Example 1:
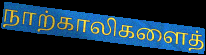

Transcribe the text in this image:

நாற்காலிகளைத்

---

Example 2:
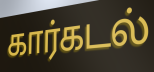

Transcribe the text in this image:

கார்கடல்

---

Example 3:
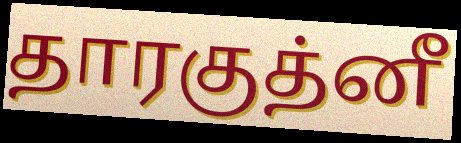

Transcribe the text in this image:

தாரகுத்னீ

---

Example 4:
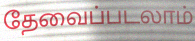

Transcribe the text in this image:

தேவைப்படலாம்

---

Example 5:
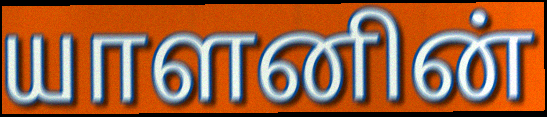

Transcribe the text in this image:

யாளனின்